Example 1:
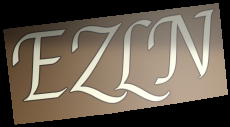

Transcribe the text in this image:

EZLN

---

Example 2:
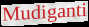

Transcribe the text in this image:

Mudiganti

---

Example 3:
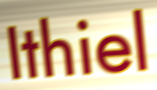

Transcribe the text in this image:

Ithiel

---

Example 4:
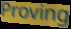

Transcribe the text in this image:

Proving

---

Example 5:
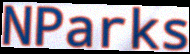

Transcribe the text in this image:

NParks